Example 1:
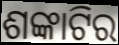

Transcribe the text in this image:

ଶଙ୍କାଟିର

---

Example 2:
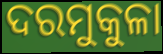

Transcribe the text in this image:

ଦରମୁକୁଳା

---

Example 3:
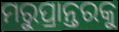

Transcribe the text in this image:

ମରୁପ୍ରାନ୍ତରକୁ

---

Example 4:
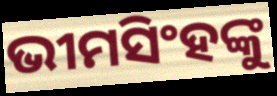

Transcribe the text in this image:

ଭୀମସିଂହଙ୍କୁ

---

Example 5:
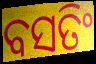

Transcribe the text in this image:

ବସତିଂ